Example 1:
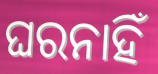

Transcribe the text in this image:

ଘରନାହିଁ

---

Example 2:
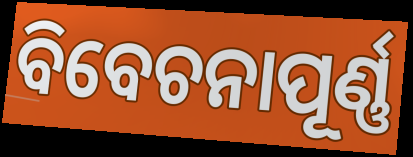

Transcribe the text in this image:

ବିବେଚନାପୂର୍ଣ୍ଣ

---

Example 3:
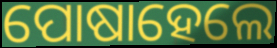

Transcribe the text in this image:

ପୋଷାହେଲେ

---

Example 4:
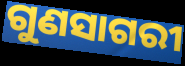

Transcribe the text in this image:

ଗୁଣସାଗରୀ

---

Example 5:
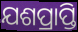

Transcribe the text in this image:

ଯଶପ୍ରାପ୍ତି